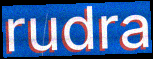
rudra